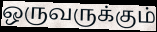
ஒருவருக்கும்